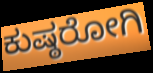
ಕುಷ್ಠರೋಗಿ